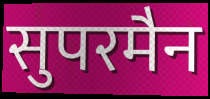
सुपरमैन